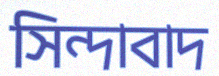
সিন্দাবাদ